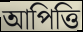
আপিত্তি